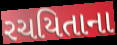
રચયિતાના